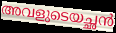
അവളുടെയച്ഛൻ